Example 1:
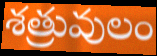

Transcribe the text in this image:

శత్రువులం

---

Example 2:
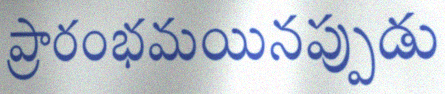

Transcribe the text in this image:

ప్రారంభమయినప్పుడు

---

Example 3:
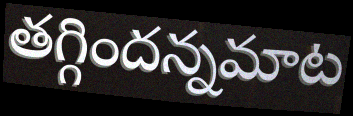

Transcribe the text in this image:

తగ్గిందన్నమాట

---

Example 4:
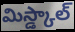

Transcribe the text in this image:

మిస్డ్కాల్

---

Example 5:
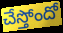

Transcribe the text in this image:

చేస్తోందో